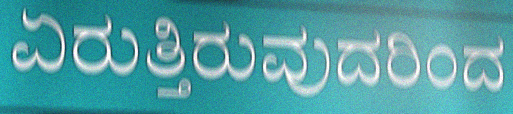
ಏರುತ್ತಿರುವುದರಿಂದ